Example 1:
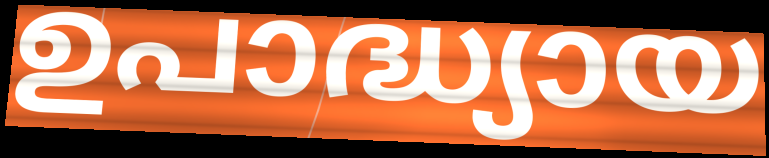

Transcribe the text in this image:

ഉപാദ്ധ്യായ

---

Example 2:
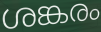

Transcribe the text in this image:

ശങ്കരം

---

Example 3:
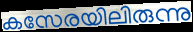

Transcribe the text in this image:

കസേരയിലിരുന്നു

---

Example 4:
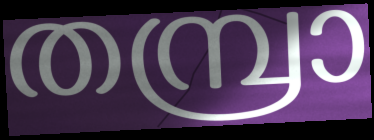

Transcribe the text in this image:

തമ്പ്രാ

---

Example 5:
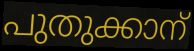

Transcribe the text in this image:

പുതുക്കാന്